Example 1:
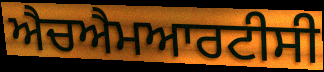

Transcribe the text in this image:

ਐਚਐਮਆਰਟੀਸੀ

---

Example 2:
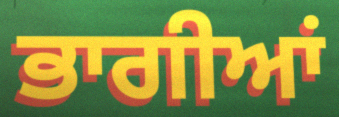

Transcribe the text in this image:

ਭਾਗੀਆਂ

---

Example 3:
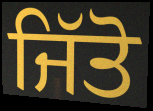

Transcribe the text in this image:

ਜਿੱਤੋ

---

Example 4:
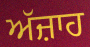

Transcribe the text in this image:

ਅੱਜ਼ਾਹ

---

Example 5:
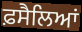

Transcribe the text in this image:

ਫ਼ਸੈਲਿਆਂ